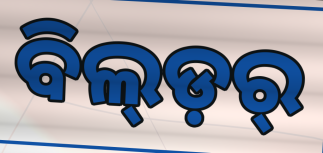
ବିଲ୍ଡ଼ର୍